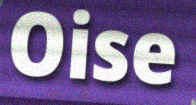
Oise